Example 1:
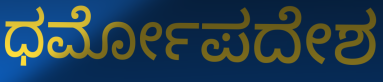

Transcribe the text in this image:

ಧರ್ಮೋಪದೇಶ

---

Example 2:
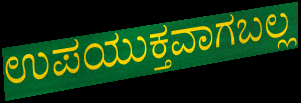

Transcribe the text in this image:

ಉಪಯುಕ್ತವಾಗಬಲ್ಲ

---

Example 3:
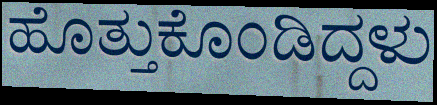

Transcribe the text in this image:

ಹೊತ್ತುಕೊಂಡಿದ್ದಳು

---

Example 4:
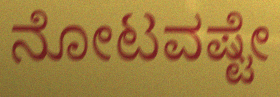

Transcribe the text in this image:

ನೋಟವಷ್ಟೇ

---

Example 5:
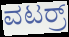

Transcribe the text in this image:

ವಟರ್ರ್